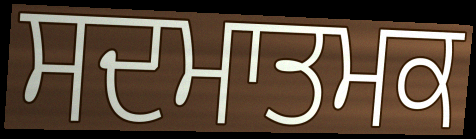
ਸਦਮਾਤਮਕ